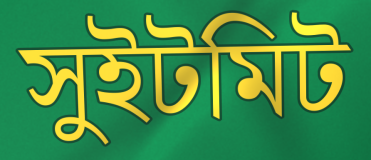
সুইটমিট